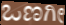
ಒಣಗೀ